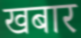
खबार